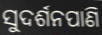
ସୁଦର୍ଶନପାଣି